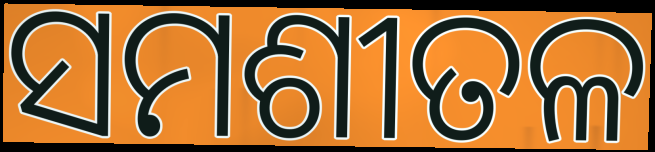
ସମଶୀତଳ